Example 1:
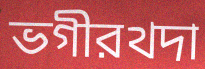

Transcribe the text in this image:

ভগীরথদা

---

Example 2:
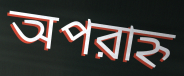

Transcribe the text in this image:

অপরাহ্ন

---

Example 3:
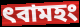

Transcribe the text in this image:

ৎবামহং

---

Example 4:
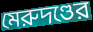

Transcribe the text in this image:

মেরুদণ্ডের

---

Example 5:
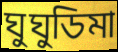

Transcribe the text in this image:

ঘুঘুডিমা